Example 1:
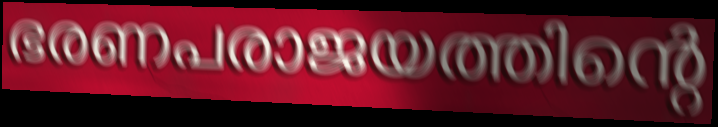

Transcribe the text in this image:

ഭരണപരാജയത്തിന്റെ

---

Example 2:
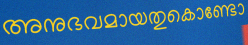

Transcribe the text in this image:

അനുഭവമായതുകൊണ്ടോ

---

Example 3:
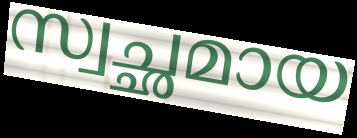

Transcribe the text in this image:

സ്വച്ഛമായ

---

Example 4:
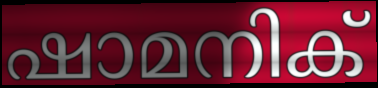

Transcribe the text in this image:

ഷാമനിക്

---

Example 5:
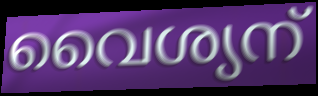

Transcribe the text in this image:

വൈശ്യന്